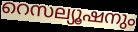
റെസല്യൂഷനും